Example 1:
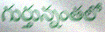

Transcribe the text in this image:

గుర్తున్నంతలో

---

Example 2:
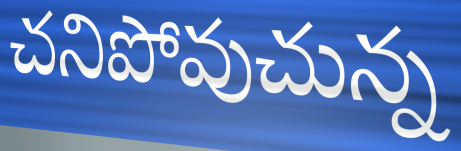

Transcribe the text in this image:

చనిపోవుచున్న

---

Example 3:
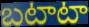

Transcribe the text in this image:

బటాటా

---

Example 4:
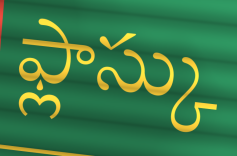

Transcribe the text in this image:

ఫ్లాస్కు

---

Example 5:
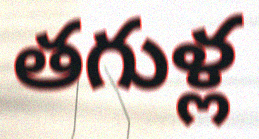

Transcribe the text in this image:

తగుళ్ల